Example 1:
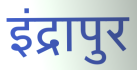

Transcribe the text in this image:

इंद्रापुर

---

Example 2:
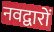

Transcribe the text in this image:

नवद्वारों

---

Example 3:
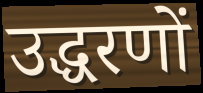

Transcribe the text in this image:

उद्धरणों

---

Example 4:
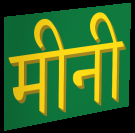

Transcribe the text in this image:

मीनी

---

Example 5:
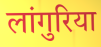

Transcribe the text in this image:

लांगुरिया